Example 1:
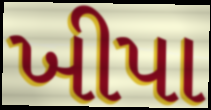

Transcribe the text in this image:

ખીપા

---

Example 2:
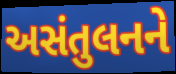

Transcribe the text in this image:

અસંતુલનને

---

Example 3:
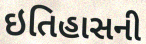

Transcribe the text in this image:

ઇતિહાસની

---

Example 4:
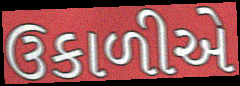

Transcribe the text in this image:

ઉકાળીએ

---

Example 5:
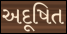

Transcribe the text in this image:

અદૂષિત